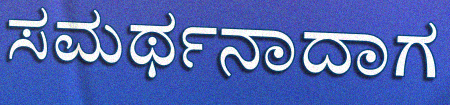
ಸಮರ್ಥನಾದಾಗ